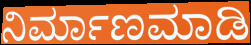
ನಿರ್ಮಾಣಮಾಡಿ